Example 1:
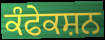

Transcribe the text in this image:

ਕੰਫੇਕਸ਼ਨ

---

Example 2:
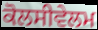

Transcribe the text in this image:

ਕੋਲਸੀਵੇਲਮ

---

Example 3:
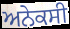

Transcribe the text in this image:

ਅਨੇਕਸੀ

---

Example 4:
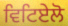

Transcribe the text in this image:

ਵਿਟਿਏਲੋ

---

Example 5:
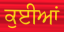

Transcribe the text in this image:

ਕੁਈਆਂ